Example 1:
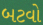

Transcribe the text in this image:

બટવો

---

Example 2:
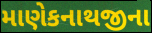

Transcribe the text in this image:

માણેકનાથજીના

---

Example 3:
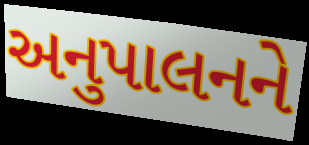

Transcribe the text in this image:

અનુપાલનને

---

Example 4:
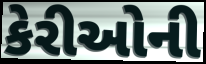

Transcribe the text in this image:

કેરીઓની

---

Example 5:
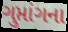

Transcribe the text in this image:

ગુપ્તાંગના